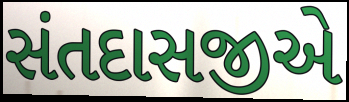
સંતદાસજીએ